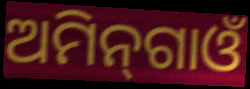
ଅମିନ୍‌ଗାଓଁ